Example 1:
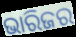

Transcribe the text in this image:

ଭାରିଜର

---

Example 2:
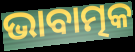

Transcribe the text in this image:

ଭାବାତ୍ମକ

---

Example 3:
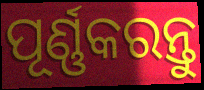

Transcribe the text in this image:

ପୂର୍ଣ୍ଣକରନ୍ତୁ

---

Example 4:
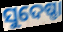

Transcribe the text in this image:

ସୁଦେଷ୍ଣା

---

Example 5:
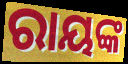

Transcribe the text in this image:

ରାୟଙ୍କ